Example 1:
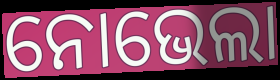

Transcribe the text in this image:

ନୋଭେଲା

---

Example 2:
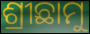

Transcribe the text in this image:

ଶ୍ରୀଛାମୁ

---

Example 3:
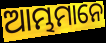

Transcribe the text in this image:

ଆମ୍ଭମାନେ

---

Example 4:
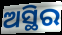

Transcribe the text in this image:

ଅସ୍ଥିର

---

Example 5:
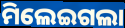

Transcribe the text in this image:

ମିଲେଇଗଲା